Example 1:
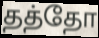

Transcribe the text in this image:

தத்தோ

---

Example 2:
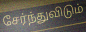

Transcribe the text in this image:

சேர்ந்துவிடும்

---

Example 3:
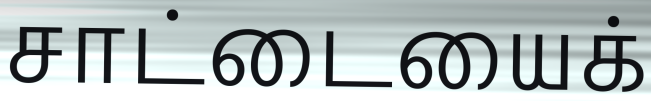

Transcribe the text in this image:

சாட்டையைக்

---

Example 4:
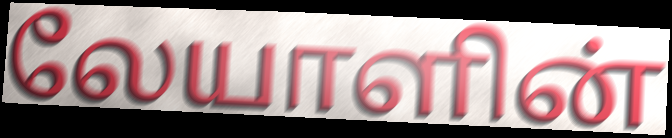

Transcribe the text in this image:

லேயாளின்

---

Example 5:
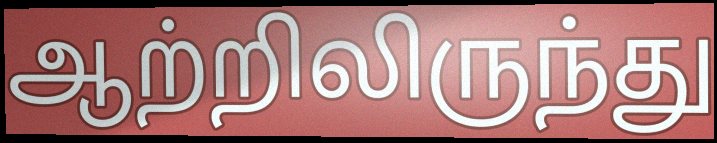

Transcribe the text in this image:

ஆற்றிலிருந்து